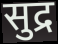
सुद्र